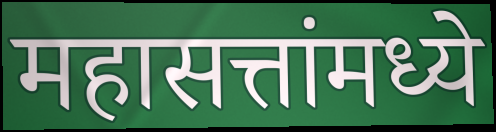
महासत्तांमध्ये